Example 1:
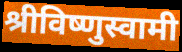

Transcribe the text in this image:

श्रीविष्णुस्वामी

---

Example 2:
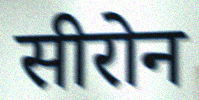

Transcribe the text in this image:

सीरोन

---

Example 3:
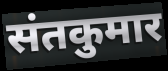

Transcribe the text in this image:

संतकुमार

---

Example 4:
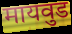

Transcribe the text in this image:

मायवुड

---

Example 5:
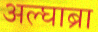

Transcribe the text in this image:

अल्घाब्रा